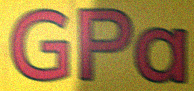
GPa